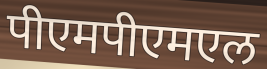
पीएमपीएमएल